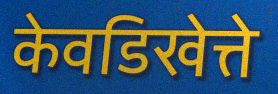
केवडिखेत्ते